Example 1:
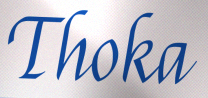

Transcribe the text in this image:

Thoka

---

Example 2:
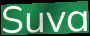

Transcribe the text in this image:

Suva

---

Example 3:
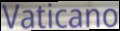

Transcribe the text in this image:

Vaticano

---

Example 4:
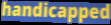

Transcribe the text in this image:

handicapped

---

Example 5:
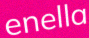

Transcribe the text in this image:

enella